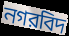
নগরবিদ